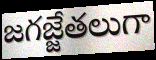
జగజ్జేతలుగా